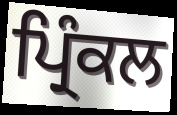
ਪ੍ਰਿੰਕਲ